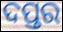
ଦପ୍ତର